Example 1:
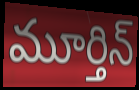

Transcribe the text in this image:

మూర్తిన్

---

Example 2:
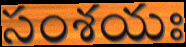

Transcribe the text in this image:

సంశయః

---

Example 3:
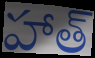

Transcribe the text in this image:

హాత్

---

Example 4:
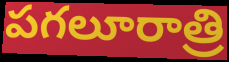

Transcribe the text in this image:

పగలూరాత్రి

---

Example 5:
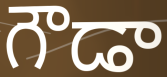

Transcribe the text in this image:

గౌడా